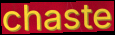
chaste